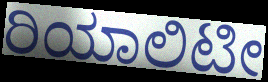
ರಿಯಾಲಿಟೀ